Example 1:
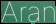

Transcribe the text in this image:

Aran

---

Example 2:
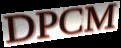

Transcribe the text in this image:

DPCM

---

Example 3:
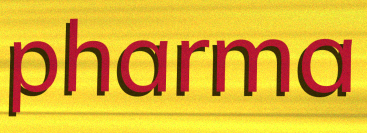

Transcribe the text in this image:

pharma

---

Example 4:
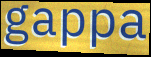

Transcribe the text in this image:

gappa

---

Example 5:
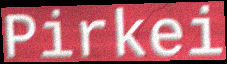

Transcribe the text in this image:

Pirkei